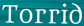
Torrid